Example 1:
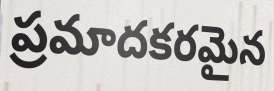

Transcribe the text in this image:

ప్రమాదకరమైన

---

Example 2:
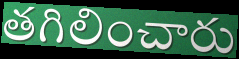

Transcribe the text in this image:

తగిలించారు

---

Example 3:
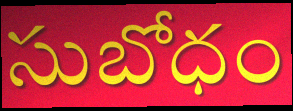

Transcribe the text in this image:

సుబోధం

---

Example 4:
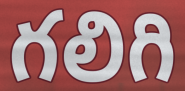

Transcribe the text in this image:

గలిగి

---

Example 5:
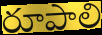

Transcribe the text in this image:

రూపాలి